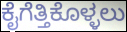
ಕೈಗೆತ್ತಿಕೊಳ್ಳಲು